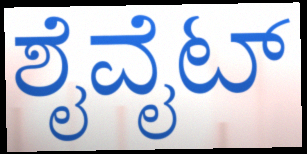
ಶೈವೈಟ್